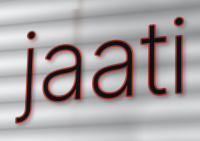
jaati